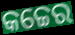
କଚ୍ଚେର